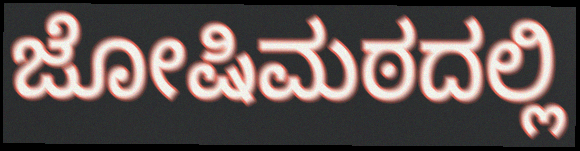
ಜೋಷಿಮಠದಲ್ಲಿ